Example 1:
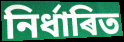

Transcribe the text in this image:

নিৰ্ধাৰিত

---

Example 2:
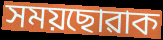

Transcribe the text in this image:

সময়ছোৱাক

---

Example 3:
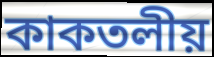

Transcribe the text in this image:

কাকতলীয়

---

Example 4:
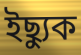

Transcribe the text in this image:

ইছ্যুক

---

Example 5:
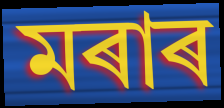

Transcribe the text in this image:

মৰাৰ